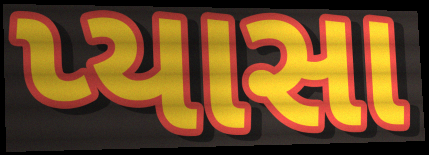
પ્યાસા